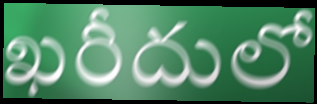
ఖరీదులో